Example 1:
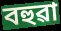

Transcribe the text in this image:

বহুৱা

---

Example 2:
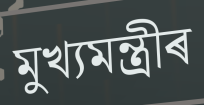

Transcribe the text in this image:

মুখ্যমন্ত্ৰীৰ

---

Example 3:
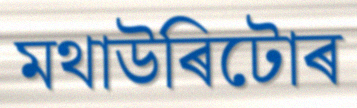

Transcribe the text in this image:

মথাউৰিটোৰ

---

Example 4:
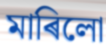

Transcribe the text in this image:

মাৰিলো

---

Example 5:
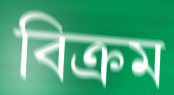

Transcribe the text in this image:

বিক্ৰম